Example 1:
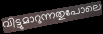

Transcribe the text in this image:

വിട്ടുമാറുന്നതുപോലെ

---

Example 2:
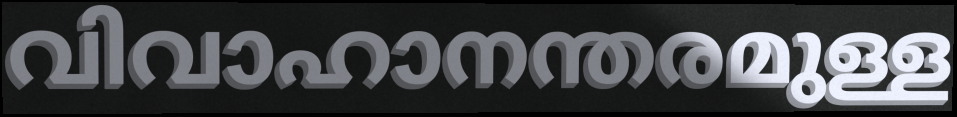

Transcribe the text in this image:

വിവാഹാനന്തരമുള്ള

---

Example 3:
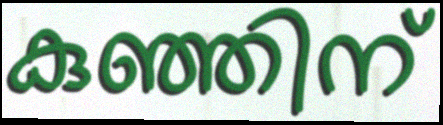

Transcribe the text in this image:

കുഞ്ഞിന്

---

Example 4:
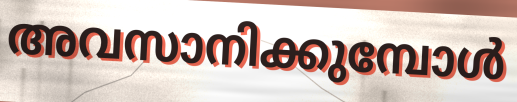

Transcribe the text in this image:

അവസാനിക്കുമ്പോൾ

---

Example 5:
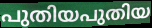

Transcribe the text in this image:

പുതിയപുതിയ